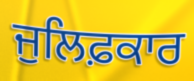
ਜੁਲਿਫ਼ਕਾਰ